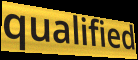
qualified